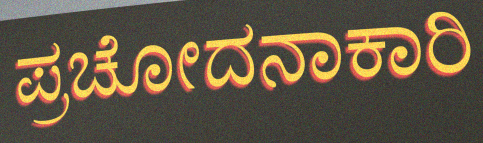
ಪ್ರಚೋದನಾಕಾರಿ